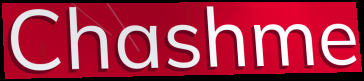
Chashme